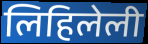
लिहिलेली